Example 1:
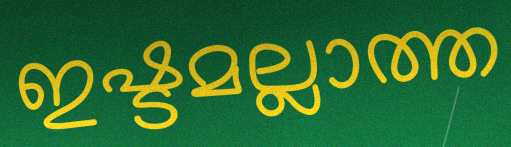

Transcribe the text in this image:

ഇഷ്ടമല്ലാത്ത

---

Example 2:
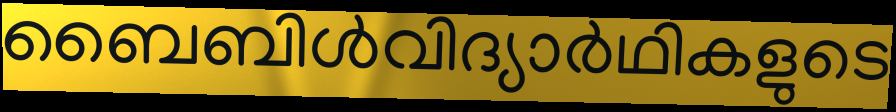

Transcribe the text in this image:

ബൈബിൾവിദ്യാർഥികളുടെ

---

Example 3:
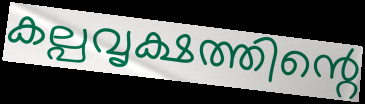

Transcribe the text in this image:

കല്പവൃക്ഷത്തിന്റെ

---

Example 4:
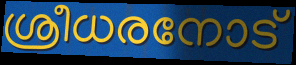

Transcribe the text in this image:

ശ്രീധരനോട്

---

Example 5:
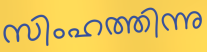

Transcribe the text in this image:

സിംഹത്തിന്നു